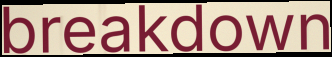
breakdown